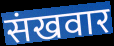
संखवार